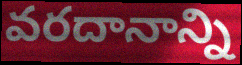
వరదానాన్ని